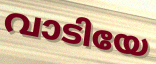
വാടിയേ